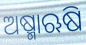
ଅଷ୍ମାଋଷି